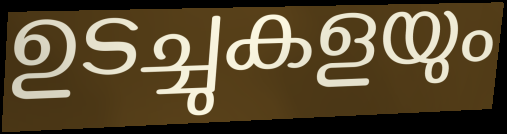
ഉടച്ചുകളയും